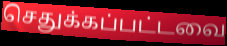
செதுக்கப்பட்டவை